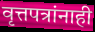
वृत्तपत्रांनाही